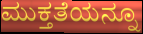
ಮುಕ್ತತೆಯನ್ನೂ